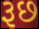
રૂછ